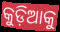
କୁଡ଼ିଆକୁ